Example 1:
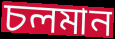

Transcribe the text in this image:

চলমান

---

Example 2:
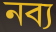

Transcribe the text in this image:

নব্য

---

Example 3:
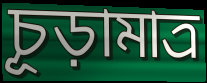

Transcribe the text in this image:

চূড়ামাত্র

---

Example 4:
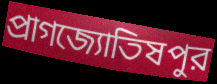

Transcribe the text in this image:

প্রাগজ্যোতিষপুর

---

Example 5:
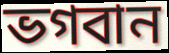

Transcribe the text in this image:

ভগবান